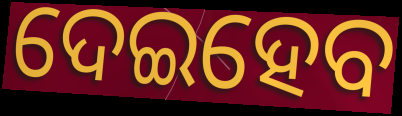
ଦେଇହେବ